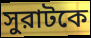
সুরাটকে